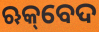
ଋକ୍‌ବେଦ